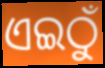
ଏଇଠୁଁ